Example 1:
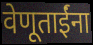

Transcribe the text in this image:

वेणूताईंना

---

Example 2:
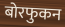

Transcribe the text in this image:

बोरफुकन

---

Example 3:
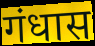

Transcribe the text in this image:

गंधास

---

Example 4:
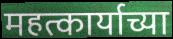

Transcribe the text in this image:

महत्कार्याच्या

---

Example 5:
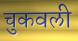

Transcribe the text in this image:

चुकवली